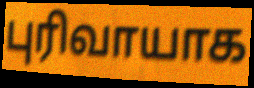
புரிவாயாக